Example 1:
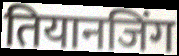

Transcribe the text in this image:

तियानजिंग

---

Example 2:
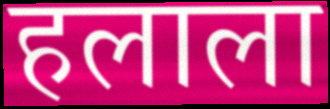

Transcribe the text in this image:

हलाला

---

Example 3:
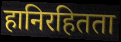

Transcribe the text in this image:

हानिरहितता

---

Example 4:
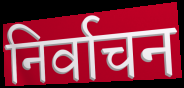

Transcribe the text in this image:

निर्वाचन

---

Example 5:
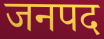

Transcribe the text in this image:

जनपद